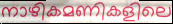
നാഴികമണികളിലെ